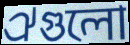
ঐগুলো